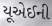
યૂએઈની